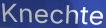
Knechte